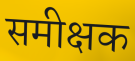
समीक्षक